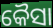
କୈସା